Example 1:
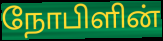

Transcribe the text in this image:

நோபிளின்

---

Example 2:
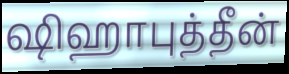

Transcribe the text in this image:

ஷிஹாபுத்தீன்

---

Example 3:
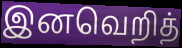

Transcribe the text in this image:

இனவெறித்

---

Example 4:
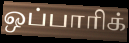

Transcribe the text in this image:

ஒப்பாரிக்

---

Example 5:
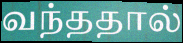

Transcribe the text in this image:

வந்ததால்